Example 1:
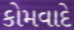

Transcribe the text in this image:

કોમવાદે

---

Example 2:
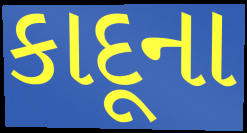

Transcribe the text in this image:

કાદૂના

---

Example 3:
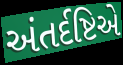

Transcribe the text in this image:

અંતર્દષ્ટિએ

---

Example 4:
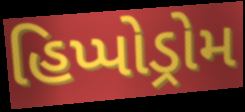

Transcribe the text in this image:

હિપ્પોડ્રોમ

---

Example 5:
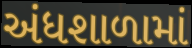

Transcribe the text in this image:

અંધશાળામાં